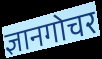
ज्ञानगोचर